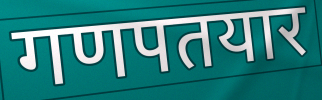
गणपतयार